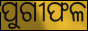
ପୁଗୀଫଳ